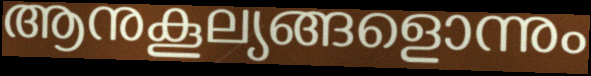
ആനുകൂല്യങ്ങളൊന്നും